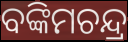
ବଙ୍କିମଚନ୍ଦ୍ର